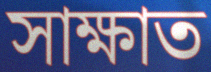
সাক্ষাত